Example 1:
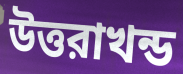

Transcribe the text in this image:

উত্তরাখন্ড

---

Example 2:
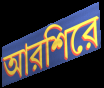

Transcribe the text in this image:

আরশিরে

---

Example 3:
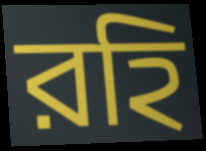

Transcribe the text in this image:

রহি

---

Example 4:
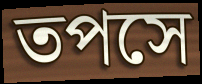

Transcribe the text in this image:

তপসে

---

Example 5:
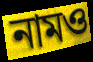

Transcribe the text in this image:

নামও